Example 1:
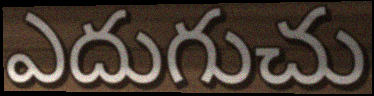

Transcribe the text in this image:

ఎదుగుచు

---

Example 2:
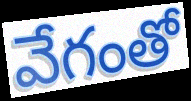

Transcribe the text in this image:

వేగంతో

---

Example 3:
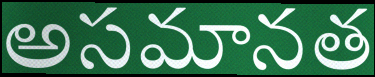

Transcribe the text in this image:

అసమానత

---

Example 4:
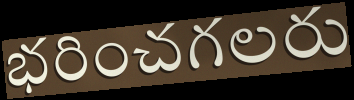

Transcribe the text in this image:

భరించగలరు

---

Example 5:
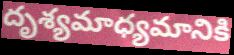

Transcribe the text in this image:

దృశ్యమాధ్యమానికి